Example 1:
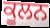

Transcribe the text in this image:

ਕੂਲਨ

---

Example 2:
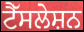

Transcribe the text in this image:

ਟੈੱਸਲੇਸ਼ਨ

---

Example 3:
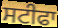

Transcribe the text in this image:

ਸਟੀਫਾ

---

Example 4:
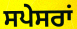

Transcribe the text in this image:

ਸਪੇਸਰਾਂ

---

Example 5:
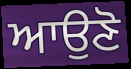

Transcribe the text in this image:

ਆਉਣੋ